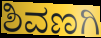
ಶಿವಣಗಿ